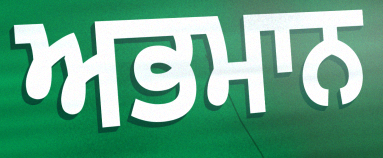
ਅਭਮਾਨ